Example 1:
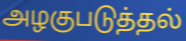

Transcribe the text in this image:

அழகுபடுத்தல்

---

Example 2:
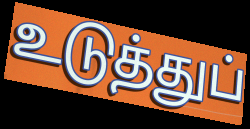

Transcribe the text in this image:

உடுத்துப்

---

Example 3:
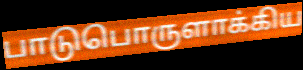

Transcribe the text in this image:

பாடுபொருளாக்கிய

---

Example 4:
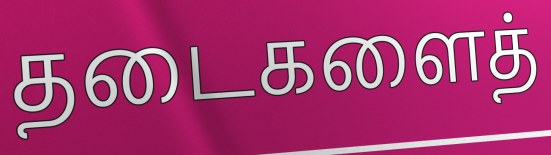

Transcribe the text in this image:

தடைகளைத்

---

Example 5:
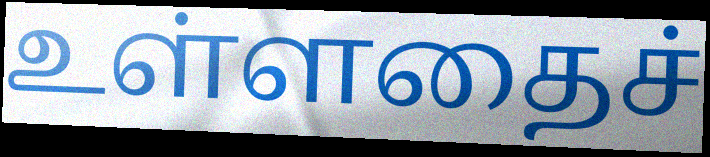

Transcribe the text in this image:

உள்ளதைச்